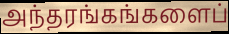
அந்தரங்கங்களைப்